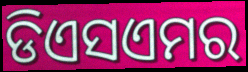
ଡିଏସଏମର